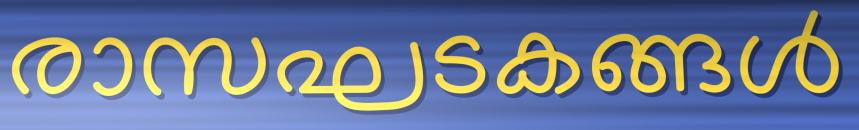
രാസഘടകങ്ങൾ